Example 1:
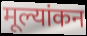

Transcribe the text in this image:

मूल्‍यांकन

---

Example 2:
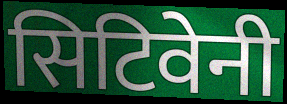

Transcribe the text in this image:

सिटिवेनी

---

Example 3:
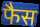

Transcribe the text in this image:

फैस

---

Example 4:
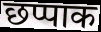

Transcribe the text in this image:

छप्पाक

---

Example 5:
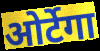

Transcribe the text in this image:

ओर्टेगा